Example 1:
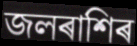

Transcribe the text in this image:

জলৰাশিৰ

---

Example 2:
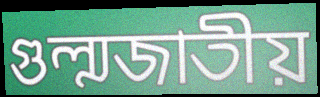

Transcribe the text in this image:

গুল্মজাতীয়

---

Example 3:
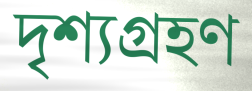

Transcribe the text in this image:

দৃশ্যগ্ৰহণ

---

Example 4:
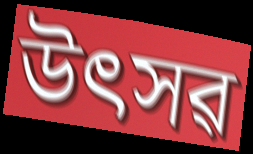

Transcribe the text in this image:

উৎসৱ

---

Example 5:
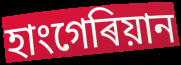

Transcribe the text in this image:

হাংগেৰিয়ান